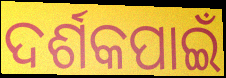
ଦର୍ଶକପାଇଁ